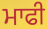
ਮਾਫੀ